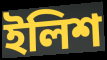
ইলিশ